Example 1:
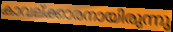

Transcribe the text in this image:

കാവല്ക്കാരനായിരുന്നു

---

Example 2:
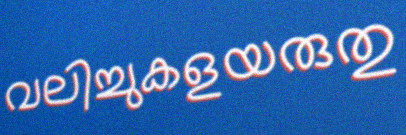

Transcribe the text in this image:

വലിച്ചുകളയരുതു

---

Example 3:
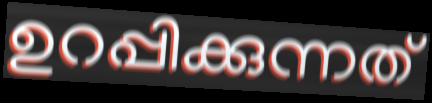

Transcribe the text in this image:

ഉറപ്പിക്കുന്നത്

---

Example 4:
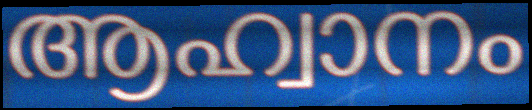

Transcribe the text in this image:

ആഹ്വാനം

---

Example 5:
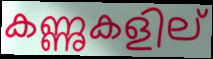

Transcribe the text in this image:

കണ്ണുകളില്